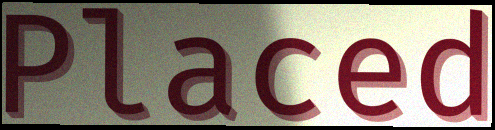
Placed